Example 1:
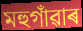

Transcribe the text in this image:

মহুগাঁৱাৰ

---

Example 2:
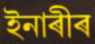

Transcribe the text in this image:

ইনাৰীৰ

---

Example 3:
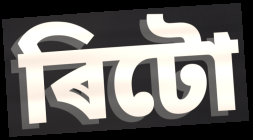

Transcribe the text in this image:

ৰিটো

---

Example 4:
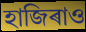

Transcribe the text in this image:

হাজিৰাও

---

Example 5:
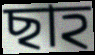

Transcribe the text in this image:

ছাহ